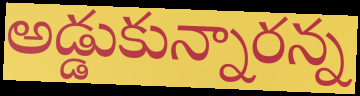
అడ్డుకున్నారన్న